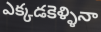
ఎక్కడకెళ్ళినా